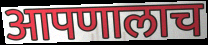
आपणालाच